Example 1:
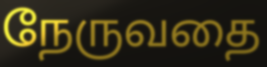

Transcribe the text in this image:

நேருவதை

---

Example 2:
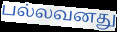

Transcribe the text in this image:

பல்லவனது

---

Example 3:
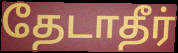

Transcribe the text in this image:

தேடாதீர்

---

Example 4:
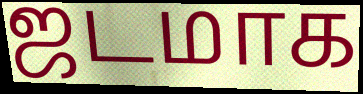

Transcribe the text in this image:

ஜடமாக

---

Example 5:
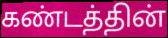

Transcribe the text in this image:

கண்டத்தின்